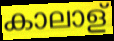
കാലാള്